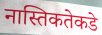
नास्तिकतेकडे